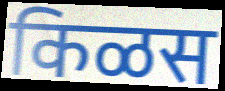
किळस